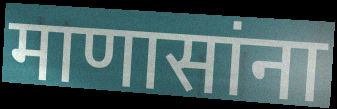
माणासांना